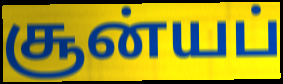
சூன்யப்